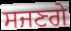
ਸਜਣਗੇ